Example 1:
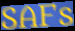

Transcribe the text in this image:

SAFs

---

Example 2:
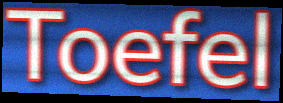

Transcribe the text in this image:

Toefel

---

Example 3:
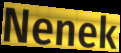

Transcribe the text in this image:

Nenek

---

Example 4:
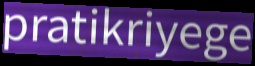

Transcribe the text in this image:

pratikriyege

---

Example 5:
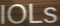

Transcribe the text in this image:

IOLs